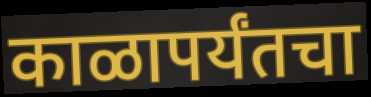
काळापर्यंतचा